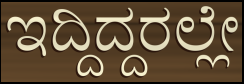
ಇದ್ದಿದ್ದರಲ್ಲೇ